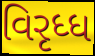
વિરૃધ્ધ